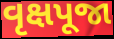
વૃક્ષપૂજા